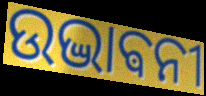
ଉଦ୍ଭାଵନୀ